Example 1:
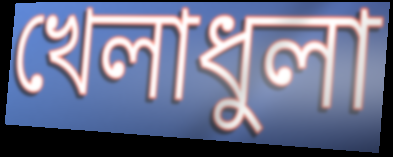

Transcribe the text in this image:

খেলাধুলা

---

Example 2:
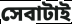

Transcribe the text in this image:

সেবাটাই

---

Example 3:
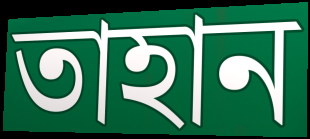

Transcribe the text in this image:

তাহান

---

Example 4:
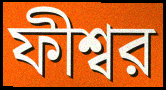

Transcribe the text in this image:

ফীশ্বর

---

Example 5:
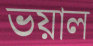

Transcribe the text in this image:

ভয়াল